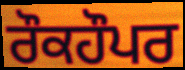
ਰੌਕਹੌਪਰ